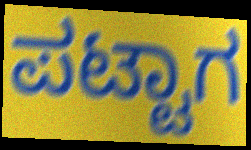
ಪಟ್ಟಾಗ